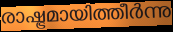
രാഷ്ട്രമായിത്തീർന്നു